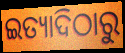
ଇତ୍ୟାଦିଠାରୁ